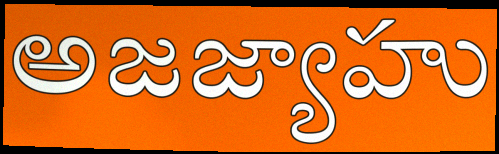
అజజ్యాహు